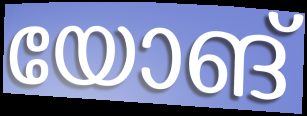
യോങ്